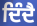
ਦਿੰਦੈ